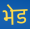
भेड